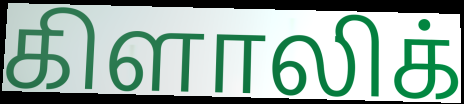
கிளாலிக்